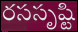
రససృష్టి